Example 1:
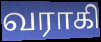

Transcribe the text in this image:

வராகி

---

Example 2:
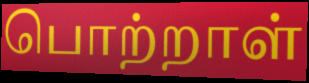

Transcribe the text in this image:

பொற்றாள்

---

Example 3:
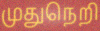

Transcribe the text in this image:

முதுநெறி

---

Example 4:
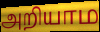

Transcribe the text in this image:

அறியாம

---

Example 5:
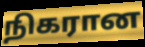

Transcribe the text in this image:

நிகரான